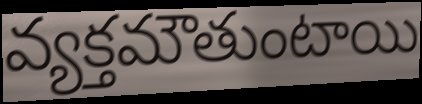
వ్యక్తమౌతుంటాయి